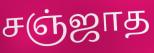
சஞ்ஜாத